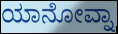
ಯಾನೋವ್ನಾ